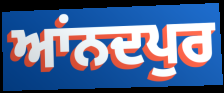
ਆਂਨਦਪੁਰ